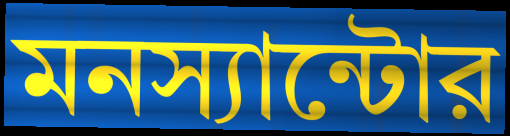
মনস্যান্টোর